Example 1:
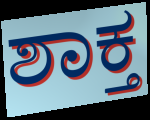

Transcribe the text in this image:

ಶಾಕ್ತ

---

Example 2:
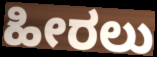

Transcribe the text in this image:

ಹೀರಲು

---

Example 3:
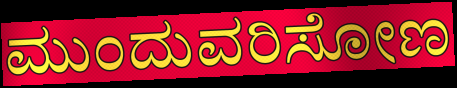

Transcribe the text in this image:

ಮುಂದುವರಿಸೋಣ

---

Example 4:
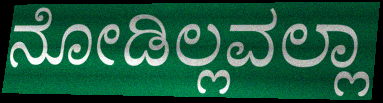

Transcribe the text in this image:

ನೋಡಿಲ್ಲವಲ್ಲಾ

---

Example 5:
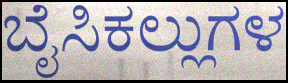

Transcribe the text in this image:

ಬೈಸಿಕಲ್ಲುಗಳ